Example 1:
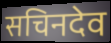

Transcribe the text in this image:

सचिनदेव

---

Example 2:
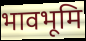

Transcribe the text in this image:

भावभूमि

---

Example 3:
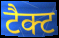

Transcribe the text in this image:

टैक्ट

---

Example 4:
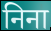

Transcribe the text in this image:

निना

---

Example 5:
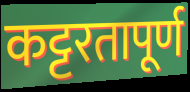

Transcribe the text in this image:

कट्टरतापूर्ण